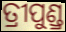
ତ୍ରୀପୁଣ୍ଡ୍ର